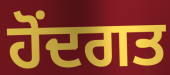
ਹੋਂਦਗਤ